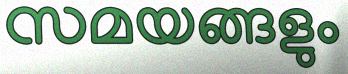
സമയങ്ങളും